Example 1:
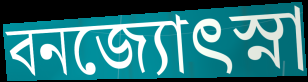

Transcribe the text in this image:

বনজ্যোৎস্না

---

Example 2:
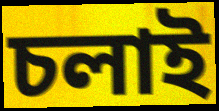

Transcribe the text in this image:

চলাই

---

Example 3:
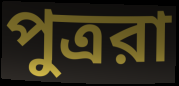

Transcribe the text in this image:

পুত্ররা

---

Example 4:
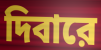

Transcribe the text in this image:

দিবারে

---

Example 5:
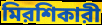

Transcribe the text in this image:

মিরশিকারী